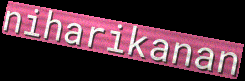
niharikanan